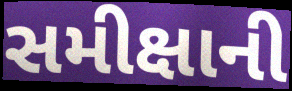
સમીક્ષાની